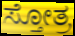
ಸ್ತೋತ್ರ